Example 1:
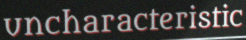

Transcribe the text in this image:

uncharacteristic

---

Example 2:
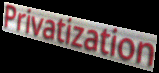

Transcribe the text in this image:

Privatization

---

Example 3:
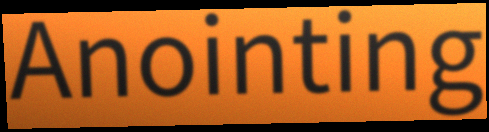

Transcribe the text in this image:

Anointing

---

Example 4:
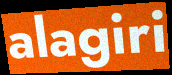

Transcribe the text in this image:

alagiri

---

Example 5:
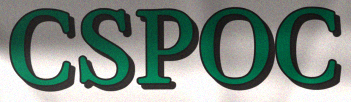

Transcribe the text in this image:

CSPOC